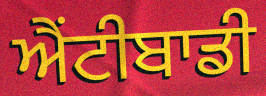
ਐਂਟੀਬਾਡੀ